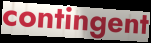
contingent